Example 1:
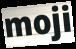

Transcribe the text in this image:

moji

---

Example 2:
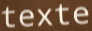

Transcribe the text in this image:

texte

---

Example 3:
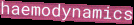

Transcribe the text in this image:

haemodynamics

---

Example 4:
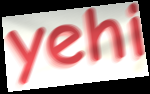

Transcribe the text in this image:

yehi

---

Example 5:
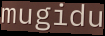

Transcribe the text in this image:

mugidu